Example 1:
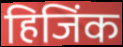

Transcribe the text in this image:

हिजिंक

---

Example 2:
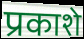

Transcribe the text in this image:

प्रकाशे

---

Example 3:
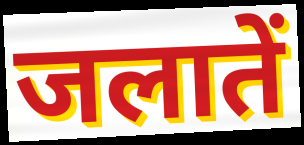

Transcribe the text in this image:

जलातें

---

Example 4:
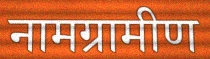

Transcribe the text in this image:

नामग्रामीण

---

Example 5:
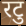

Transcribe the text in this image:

रटु